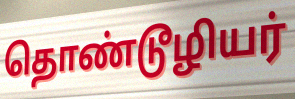
தொண்டூழியர்